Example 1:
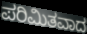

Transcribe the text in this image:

ಪರಿಮಿತವಾದ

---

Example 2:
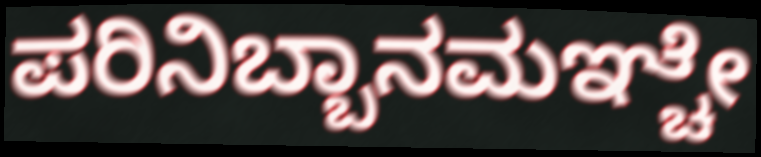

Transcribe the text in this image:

ಪರಿನಿಬ್ಬಾನಮಞ್ಚೇ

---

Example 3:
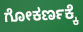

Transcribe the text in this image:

ಗೋಕರ್ಣಕ್ಕೆ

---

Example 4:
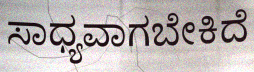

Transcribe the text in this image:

ಸಾಧ್ಯವಾಗಬೇಕಿದೆ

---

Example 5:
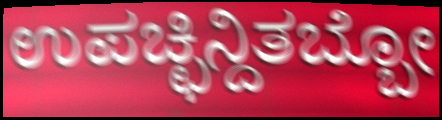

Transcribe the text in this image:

ಉಪಚ್ಛಿನ್ದಿತಬ್ಬೋ